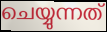
ചെയ്യുന്നത്